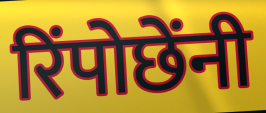
रिंपोछेंनी